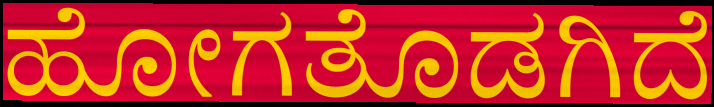
ಹೋಗತೊಡಗಿದೆ